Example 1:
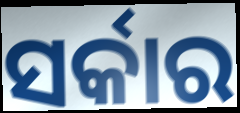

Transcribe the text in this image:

ସର୍କାର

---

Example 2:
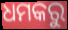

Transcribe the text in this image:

ଧମକରୁ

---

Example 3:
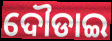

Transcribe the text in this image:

ଦୌଡାଇ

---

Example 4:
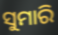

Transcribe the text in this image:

ସୁମାରି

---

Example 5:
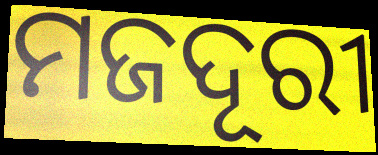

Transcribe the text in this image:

ମଜଦୂରୀ